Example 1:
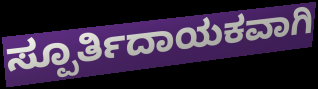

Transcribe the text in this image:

ಸ್ಪೂರ್ತಿದಾಯಕವಾಗಿ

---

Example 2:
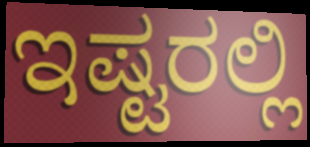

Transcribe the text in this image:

ಇಷ್ಟರಲ್ಲಿ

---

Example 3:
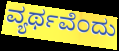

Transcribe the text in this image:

ವ್ಯರ್ಥವೆಂದು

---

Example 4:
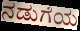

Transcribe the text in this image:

ನಡುಗೆಯ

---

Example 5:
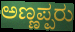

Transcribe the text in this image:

ಅಣ್ಣಪ್ಪರು